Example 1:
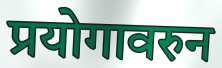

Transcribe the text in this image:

प्रयोगावरुन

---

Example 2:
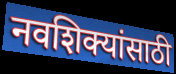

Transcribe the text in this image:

नवशिक्यांसाठी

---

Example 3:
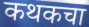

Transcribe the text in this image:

कथकचा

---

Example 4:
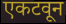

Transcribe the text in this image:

एकटवून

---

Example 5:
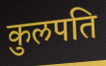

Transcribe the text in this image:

कुलपति